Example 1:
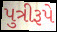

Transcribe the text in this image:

પુત્રીરૂપે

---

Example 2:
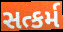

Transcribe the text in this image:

સત્કર્મ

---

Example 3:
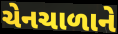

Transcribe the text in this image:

ચેનચાળાને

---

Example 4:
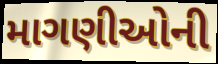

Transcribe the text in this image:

માગણીઓની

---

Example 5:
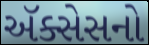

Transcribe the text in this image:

ઍક્સેસનો